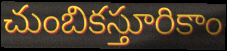
చుంబికస్తూరికాం